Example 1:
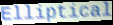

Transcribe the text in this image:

Elliptical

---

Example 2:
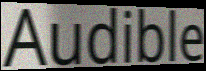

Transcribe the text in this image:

Audible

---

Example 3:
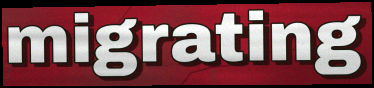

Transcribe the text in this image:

migrating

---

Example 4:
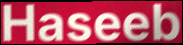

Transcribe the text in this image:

Haseeb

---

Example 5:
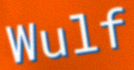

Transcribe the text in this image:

Wulf